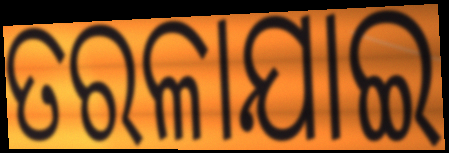
ତରଳାଯାଇ